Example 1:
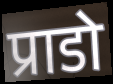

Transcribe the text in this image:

प्राडो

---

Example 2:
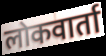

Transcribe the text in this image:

लोकवार्ता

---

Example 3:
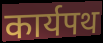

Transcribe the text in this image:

कार्यपथ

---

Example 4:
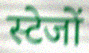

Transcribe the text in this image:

स्टेजों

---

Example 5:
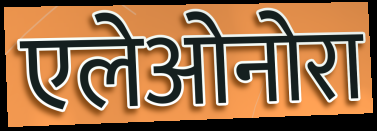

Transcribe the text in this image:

एलेओनोरा